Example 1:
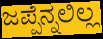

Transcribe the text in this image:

ಜಪ್ಪೆನ್ನಲಿಲ್ಲ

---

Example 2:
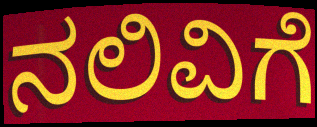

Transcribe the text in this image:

ನಲಿವಿಗೆ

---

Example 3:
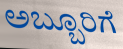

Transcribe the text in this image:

ಅಬ್ಬೂರಿಗೆ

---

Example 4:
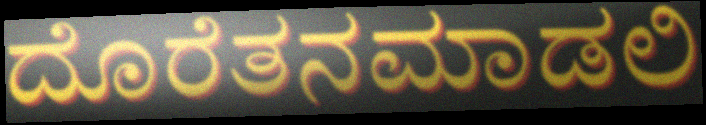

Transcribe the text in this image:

ದೊರೆತನಮಾಡಲಿ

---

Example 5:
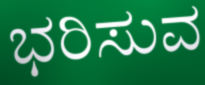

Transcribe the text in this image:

ಭರಿಸುವ